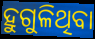
ହୁଗୁଳିଥିବା